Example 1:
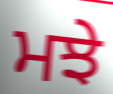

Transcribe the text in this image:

ਮਝੇ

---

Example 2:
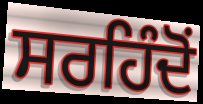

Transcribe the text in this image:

ਸਰਹਿੰਦੋਂ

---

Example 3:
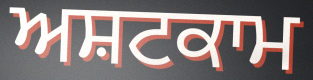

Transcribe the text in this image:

ਅਸ਼ਟਕਾਮ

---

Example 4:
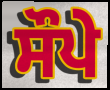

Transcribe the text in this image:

ਸੌਪੇ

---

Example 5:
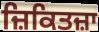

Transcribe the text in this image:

ਜ਼ਿਕਿਤਜ਼ਾ